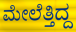
ಮೇಲೆತ್ತಿದ್ದ